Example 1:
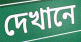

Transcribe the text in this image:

দেখানে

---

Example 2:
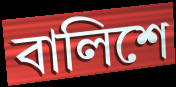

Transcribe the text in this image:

বালিশে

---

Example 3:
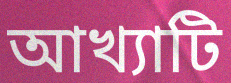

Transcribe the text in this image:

আখ্যাটি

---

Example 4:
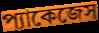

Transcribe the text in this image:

প্যাকেজেস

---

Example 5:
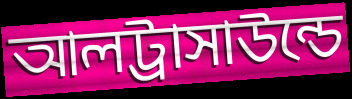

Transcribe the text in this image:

আলট্রাসাউন্ডে